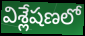
విశ్లేషణలో